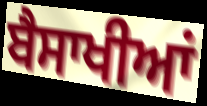
ਬੈਸਾਖੀਆਂ